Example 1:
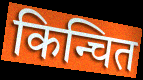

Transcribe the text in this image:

किन्चित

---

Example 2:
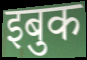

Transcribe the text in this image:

इबुक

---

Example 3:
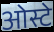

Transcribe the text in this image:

ओस्टे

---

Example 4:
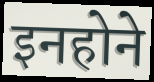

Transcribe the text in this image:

इनहोने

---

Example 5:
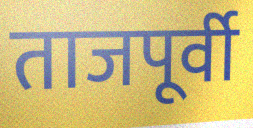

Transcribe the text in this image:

ताजपूर्वी